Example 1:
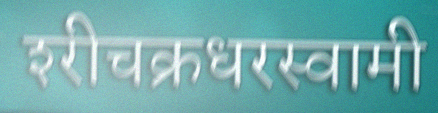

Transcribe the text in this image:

श्रीचक्रधरस्वामी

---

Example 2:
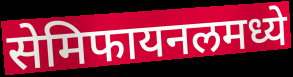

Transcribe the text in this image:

सेमिफायनलमध्ये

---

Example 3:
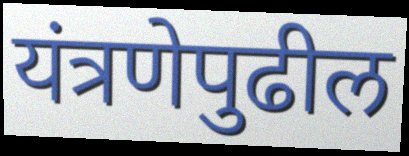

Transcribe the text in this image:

यंत्रणेपुढील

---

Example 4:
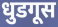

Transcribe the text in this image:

धुडगूस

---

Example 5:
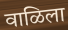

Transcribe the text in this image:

वाळिला